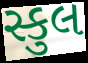
સ્કુલ